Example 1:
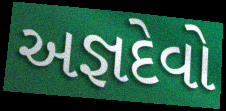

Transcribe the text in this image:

અજ્ઞદેવો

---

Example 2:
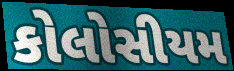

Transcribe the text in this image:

કોલોસીયમ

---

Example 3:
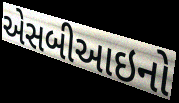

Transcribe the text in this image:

એસબીઆઇનો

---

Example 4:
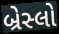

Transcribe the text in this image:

બ્રેસ્લો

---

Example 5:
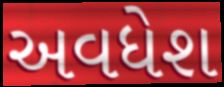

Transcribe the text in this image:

અવધેશ